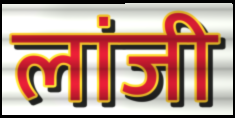
लांजी